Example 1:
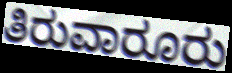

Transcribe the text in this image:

ತಿರುವಾರೂರು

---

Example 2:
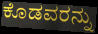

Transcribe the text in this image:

ಕೊಡವರನ್ನು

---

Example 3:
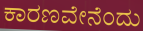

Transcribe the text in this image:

ಕಾರಣವೇನೆಂದು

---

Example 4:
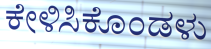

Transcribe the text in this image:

ಕೇಳಿಸಿಕೊಂಡಳು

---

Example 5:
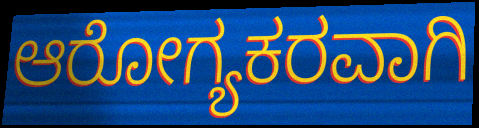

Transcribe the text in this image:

ಆರೋಗ್ಯಕರವಾಗಿ